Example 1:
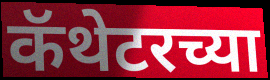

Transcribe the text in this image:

कॅथेटरच्या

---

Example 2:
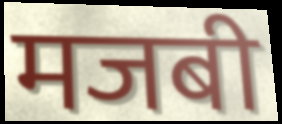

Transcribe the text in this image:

मजबी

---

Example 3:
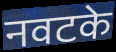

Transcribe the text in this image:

नवटके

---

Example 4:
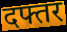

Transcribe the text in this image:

दफ्तर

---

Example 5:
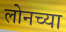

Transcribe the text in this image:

लोनच्या